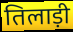
तिलाड़ी